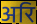
अरि